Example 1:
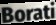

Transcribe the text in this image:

Borati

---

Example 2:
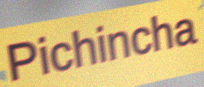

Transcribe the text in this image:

Pichincha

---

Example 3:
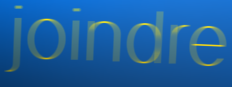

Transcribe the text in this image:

joindre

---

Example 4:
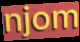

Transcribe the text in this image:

njom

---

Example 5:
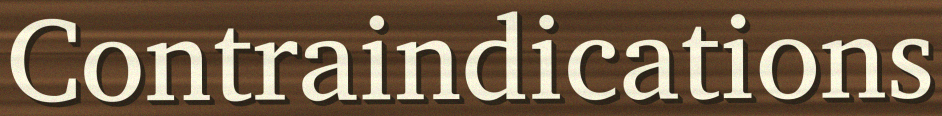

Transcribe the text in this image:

Contraindications